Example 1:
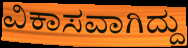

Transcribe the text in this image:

ವಿಕಾಸವಾಗಿದ್ದು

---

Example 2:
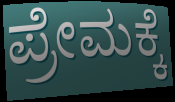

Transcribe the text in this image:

ಪ್ರೇಮಕ್ಕೆ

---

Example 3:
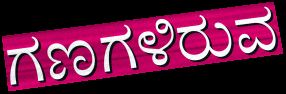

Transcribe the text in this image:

ಗಣಗಳಿರುವ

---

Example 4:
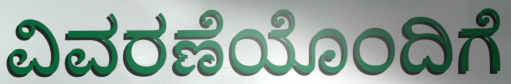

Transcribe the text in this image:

ವಿವರಣೆಯೊಂದಿಗೆ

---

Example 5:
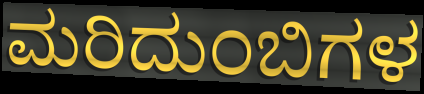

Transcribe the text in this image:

ಮರಿದುಂಬಿಗಳ